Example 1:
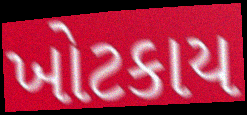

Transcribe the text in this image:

ખોટકાય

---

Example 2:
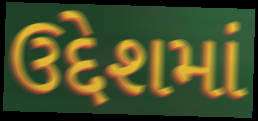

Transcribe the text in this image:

ઉદ્દેશમાં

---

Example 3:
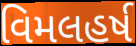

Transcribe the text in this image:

વિમલહર્ષ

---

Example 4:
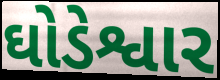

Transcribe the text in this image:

ઘોડેશ્વાર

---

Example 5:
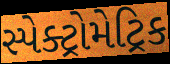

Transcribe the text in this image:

સ્પેક્ટ્રોમેટ્રિક